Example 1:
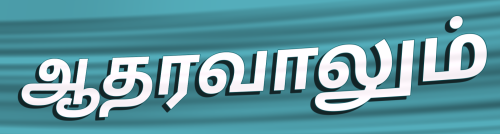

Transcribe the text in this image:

ஆதரவாலும்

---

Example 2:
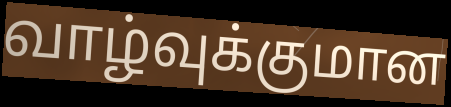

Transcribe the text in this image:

வாழ்வுக்குமான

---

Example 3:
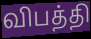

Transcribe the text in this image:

விபத்தி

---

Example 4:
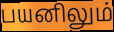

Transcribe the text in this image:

பயனிலும்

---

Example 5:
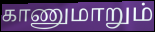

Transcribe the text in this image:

காணுமாறும்